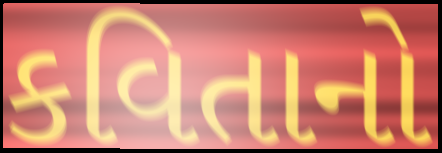
કવિતાનો